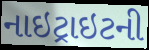
નાઇટ્રાઇટની